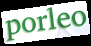
porleo